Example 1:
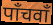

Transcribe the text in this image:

पाँचवाँ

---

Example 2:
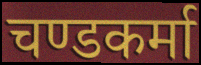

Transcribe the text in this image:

चण्डकर्मा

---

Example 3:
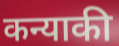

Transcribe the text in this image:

कन्याकी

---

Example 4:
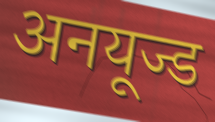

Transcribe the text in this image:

अनयूज्ड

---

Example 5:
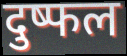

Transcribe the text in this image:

दुष्फल